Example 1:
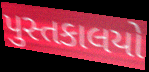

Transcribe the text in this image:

પુસ્તકાલયો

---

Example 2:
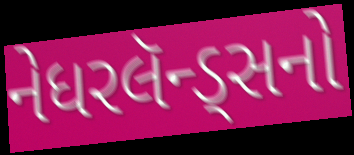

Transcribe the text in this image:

નેધરલૅન્ડ્સનો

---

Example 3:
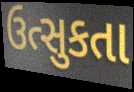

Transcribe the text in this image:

ઉત્સુકતા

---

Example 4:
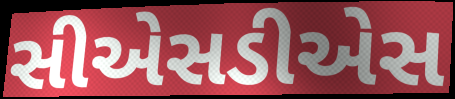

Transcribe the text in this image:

સીએસડીએસ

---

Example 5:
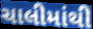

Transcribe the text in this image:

ચાલીમાંથી